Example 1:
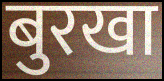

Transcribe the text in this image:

बुरखा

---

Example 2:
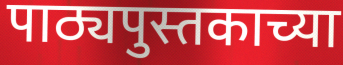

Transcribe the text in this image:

पाठ्यपुस्तकाच्या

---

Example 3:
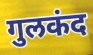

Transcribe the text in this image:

गुलकंद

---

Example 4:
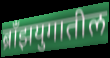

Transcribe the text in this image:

ब्राँझयुगातील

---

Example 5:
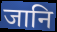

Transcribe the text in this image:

जानि